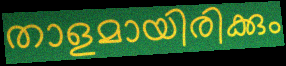
താളമായിരിക്കും